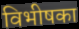
विभीषका